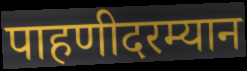
पाहणीदरम्यान